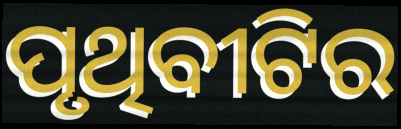
ପୃଥିବୀଟିର